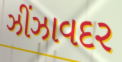
ઝીંઝાવદર